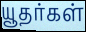
யூதர்கள்